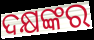
ଦକ୍ଷଙ୍କର